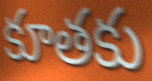
కూతకు